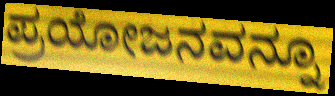
ಪ್ರಯೋಜನವನ್ನೂ